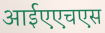
आईएएचएस